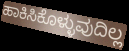
ಹಾಕಿಸಿಕೊಳ್ಳುವುದಿಲ್ಲ